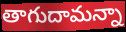
తాగుదామన్నా